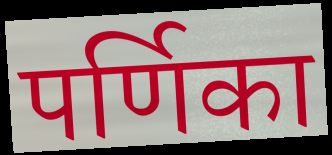
पर्णिका